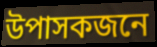
উপাসকজনে